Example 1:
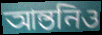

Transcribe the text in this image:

আন্তনিও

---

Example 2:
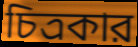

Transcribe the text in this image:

চিত্রকার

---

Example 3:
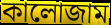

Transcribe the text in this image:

কালোজাম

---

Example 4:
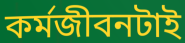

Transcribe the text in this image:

কর্মজীবনটাই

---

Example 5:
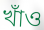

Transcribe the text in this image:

খাঁও